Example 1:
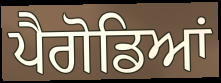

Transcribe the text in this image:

ਪੈਗੋਡਿਆਂ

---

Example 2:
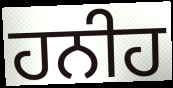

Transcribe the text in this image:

ਹਨੀਹ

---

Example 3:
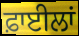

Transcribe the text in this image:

ਫ਼ਾਈਲਾਂ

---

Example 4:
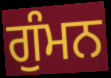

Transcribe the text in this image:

ਗੁੰਮਨ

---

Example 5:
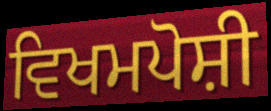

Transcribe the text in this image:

ਵਿਖਮਪੋਸ਼ੀ